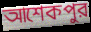
আশেকপুর